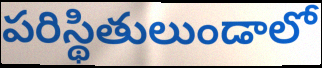
పరిస్థితులుండాలో